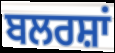
ਬਲਰਸ਼ਾਂ